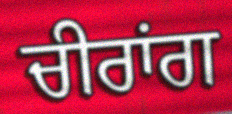
ਚੀਰਾਂਗ